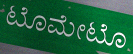
ಟೊಮೇಟೊ